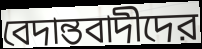
বেদান্তবাদীদের